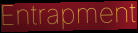
Entrapment